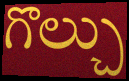
గొల్చు